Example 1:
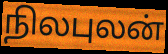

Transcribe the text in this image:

நிலபுலன்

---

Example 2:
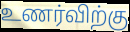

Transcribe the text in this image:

உணர்விற்கு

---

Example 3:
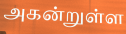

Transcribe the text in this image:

அகன்றுள்ள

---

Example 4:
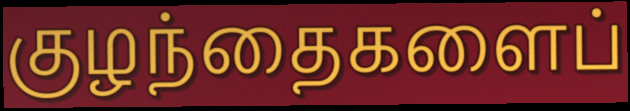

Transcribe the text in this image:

குழந்தைகளைப்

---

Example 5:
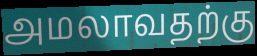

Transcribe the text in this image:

அமலாவதற்கு